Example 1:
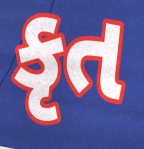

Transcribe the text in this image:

કૃત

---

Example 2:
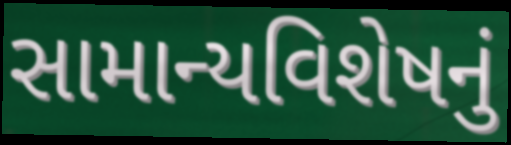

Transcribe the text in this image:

સામાન્યવિશેષનું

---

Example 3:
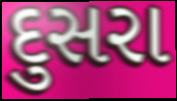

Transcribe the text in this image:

દુસરા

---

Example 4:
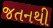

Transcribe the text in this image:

જતનથી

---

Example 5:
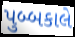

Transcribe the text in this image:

પુબ્બકાલે